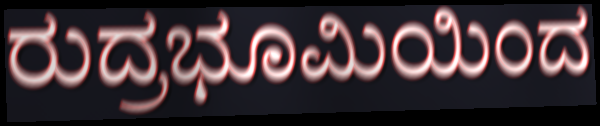
ರುದ್ರಭೂಮಿಯಿಂದ